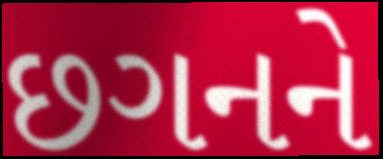
છગનને